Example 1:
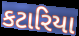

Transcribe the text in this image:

કટારિયા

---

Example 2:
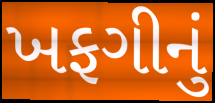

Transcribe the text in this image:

ખફગીનું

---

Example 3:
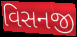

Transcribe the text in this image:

વિસનજી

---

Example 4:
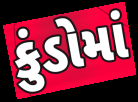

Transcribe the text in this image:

કુંડોમાં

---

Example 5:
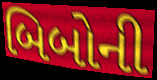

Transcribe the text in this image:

બિબોની